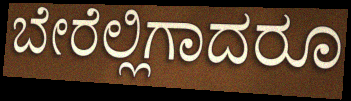
ಬೇರೆಲ್ಲಿಗಾದರೂ